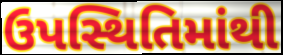
ઉપસ્થિતિમાંથી